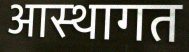
आस्थागत